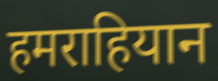
हमराहियान